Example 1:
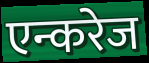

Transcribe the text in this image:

एन्करेज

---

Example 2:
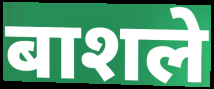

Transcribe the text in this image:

बाशले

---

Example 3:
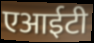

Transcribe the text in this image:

एआईटी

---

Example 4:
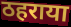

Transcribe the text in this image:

ठहराया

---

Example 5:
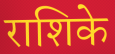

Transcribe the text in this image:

राशिके